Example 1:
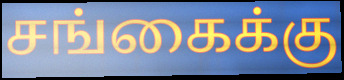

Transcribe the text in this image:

சங்கைக்கு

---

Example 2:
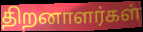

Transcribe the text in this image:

திறனாளர்கள்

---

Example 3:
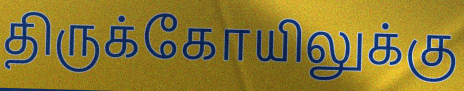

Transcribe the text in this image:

திருக்கோயிலுக்கு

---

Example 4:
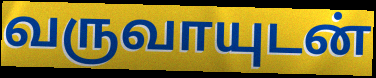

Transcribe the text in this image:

வருவாயுடன்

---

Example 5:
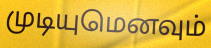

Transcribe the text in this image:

முடியுமெனவும்